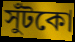
সুঁটকো